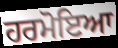
ਹਰਮੋਇਆ